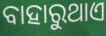
ବାହାରୁଥାଏ